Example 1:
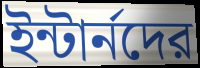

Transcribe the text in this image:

ইন্টার্নদের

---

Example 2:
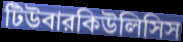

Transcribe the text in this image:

টিউবারকিউলিসিস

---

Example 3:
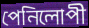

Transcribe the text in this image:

পেনিলোপী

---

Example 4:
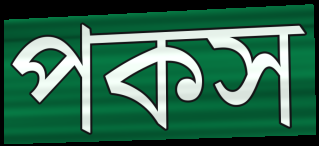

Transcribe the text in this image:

পকস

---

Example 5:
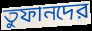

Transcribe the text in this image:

তুফানদের